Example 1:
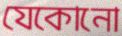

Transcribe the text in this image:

যেকোনো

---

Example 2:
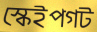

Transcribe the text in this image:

স্কেইপগট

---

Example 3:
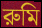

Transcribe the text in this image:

রুমি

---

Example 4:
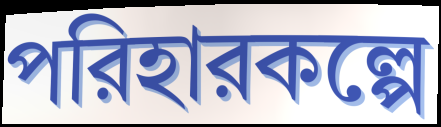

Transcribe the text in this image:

পরিহারকল্পে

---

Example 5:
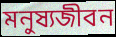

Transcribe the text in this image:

মনুষ্যজীবন